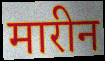
मारीन